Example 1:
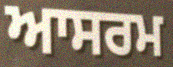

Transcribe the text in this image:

ਆਸਰਮ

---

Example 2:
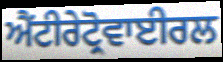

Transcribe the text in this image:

ਐਂਟੀਰੇਟ੍ਰੋਵਾਈਰਲ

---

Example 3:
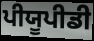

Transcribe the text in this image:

ਪੀਯੂਪੀਡੀ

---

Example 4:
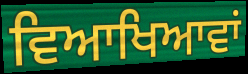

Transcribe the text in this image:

ਵਿਆਖਿਆਵਾਂ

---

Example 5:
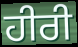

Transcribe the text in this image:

ਹੀਰੀ